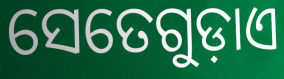
ସେତେଗୁଡ଼ାଏ